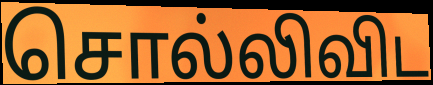
சொல்லிவிட